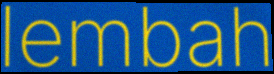
lembah